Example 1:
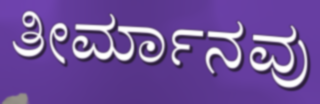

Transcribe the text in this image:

ತೀರ್ಮಾನವು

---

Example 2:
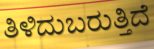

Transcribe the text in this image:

ತಿಳಿದುಬರುತ್ತಿದೆ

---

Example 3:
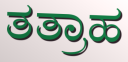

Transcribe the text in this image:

ತತ್ರಾಹ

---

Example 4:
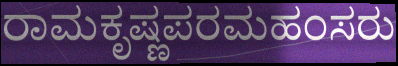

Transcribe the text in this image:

ರಾಮಕೃಷ್ಣಪರಮಹಂಸರು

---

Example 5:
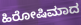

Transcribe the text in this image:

ಹಿರೋಷಿಮಾದ